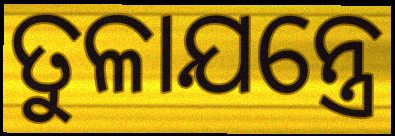
ତୁଳାଯନ୍ତ୍ରେ